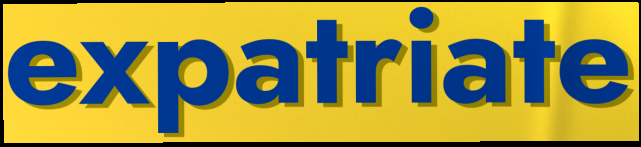
expatriate